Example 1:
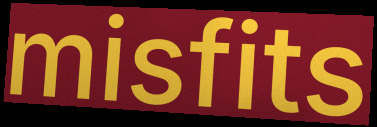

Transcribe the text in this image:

misfits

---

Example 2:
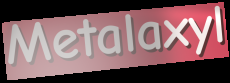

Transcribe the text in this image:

Metalaxyl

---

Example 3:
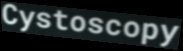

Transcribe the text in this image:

Cystoscopy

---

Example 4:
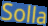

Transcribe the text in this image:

Solla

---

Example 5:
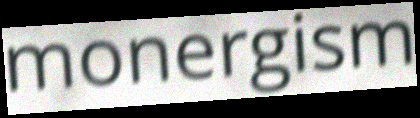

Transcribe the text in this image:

monergism